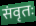
संवृतः